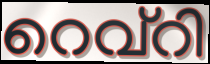
റെവ്റി